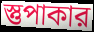
স্তুপাকার